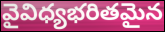
వైవిధ్యభరితమైన